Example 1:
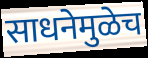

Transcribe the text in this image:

साधनेमुळेच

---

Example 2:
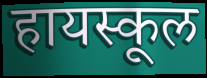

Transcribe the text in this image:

हायस्कूल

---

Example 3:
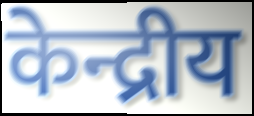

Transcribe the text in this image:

केन्द्रीय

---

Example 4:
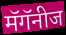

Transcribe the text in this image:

मॅगॅनीज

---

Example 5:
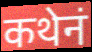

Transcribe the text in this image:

कथेनं